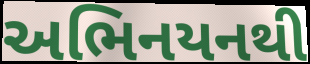
અભિનયનથી